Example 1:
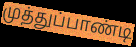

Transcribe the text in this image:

முத்துப்பாண்டி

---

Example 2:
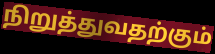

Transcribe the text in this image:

நிறுத்துவதற்கும்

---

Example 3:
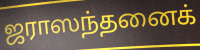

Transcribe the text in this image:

ஜராஸந்தனைக்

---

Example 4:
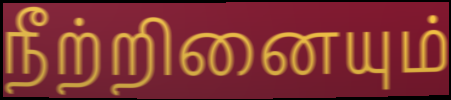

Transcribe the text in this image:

நீற்றினையும்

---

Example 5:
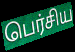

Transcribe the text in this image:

பெர்சிய